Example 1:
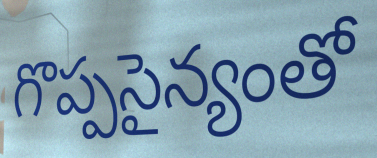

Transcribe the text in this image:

గొప్పసైన్యంతో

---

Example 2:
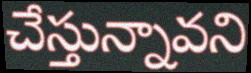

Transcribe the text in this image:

చేస్తున్నావని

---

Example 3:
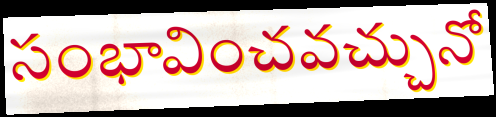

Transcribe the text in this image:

సంభావించవచ్చునో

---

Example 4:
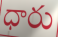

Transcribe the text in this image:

ధారు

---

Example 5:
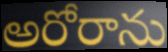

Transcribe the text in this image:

అరోరాను